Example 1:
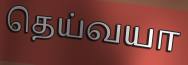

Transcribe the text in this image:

தெய்வயா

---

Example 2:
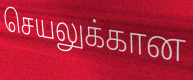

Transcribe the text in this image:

செயலுக்கான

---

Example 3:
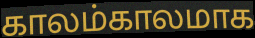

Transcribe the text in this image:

காலம்காலமாக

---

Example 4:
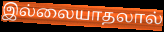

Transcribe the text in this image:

இல்லையாதலால்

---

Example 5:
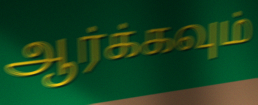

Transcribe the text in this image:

ஆர்க்கவும்